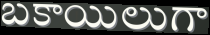
బకాయిలుగా